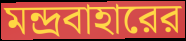
মন্দ্রবাহারের